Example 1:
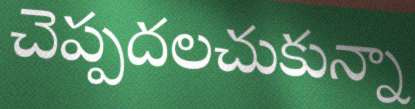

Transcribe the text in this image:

చెప్పదలచుకున్నా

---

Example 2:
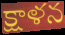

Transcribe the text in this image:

క్షాళన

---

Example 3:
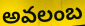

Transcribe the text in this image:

అవలంబ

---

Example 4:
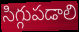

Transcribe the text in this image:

సిగ్గుపడాలి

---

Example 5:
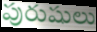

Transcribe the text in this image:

పురుషులు